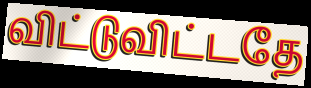
விட்டுவிட்டதே